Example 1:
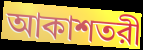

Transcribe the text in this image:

আকাশতরী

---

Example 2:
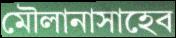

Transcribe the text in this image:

মৌলানাসাহেব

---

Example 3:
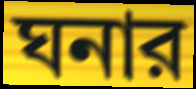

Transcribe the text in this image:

ঘনার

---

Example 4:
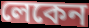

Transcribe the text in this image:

লেকেন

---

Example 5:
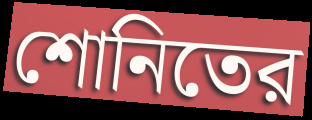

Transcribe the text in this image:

শোনিতের